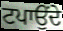
ਟਪਾਉਂਦੇ